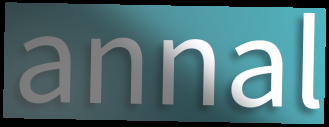
annal